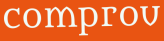
comprou